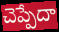
చెప్పేదా